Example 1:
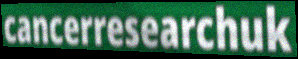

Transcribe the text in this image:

cancerresearchuk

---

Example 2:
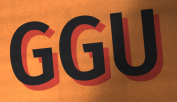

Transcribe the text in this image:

GGU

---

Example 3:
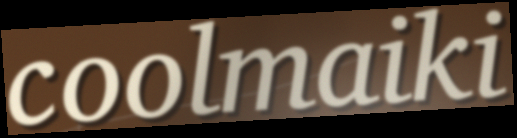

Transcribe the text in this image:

coolmaiki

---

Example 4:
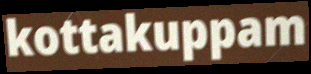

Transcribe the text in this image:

kottakuppam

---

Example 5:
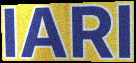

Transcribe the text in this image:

IARI